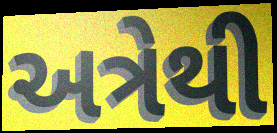
અત્રેથી